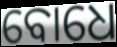
ବୋଧେ